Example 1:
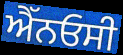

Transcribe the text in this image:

ਐੱਨਓਸੀ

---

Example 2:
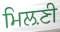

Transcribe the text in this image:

ਮਿਲ਼ਣੀ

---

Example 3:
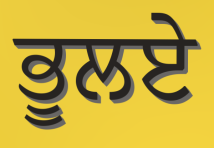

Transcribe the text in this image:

ਭੂਲਏ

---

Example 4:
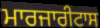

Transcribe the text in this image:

ਮਾਰਜਾਰੀਟਾਸ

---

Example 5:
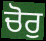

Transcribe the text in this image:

ਚੋਰੁ